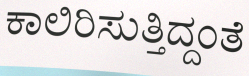
ಕಾಲಿರಿಸುತ್ತಿದ್ದಂತೆ